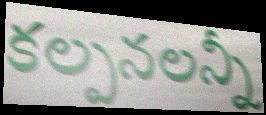
కల్పనలన్నీ